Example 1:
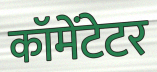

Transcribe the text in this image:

कॉमेंटेटर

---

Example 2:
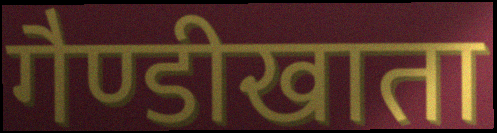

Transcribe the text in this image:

गैण्डीखाता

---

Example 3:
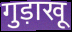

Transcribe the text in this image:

गुड़ाखू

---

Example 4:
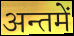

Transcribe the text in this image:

अन्तमें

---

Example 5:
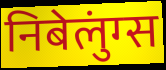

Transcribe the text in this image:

निबेलुंग्स